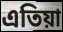
এতিয়া